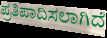
ಪ್ರತಿಪಾದಿಸಲಾಗಿದೆ